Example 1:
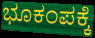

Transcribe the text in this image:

ಭೂಕಂಪಕ್ಕೆ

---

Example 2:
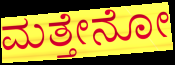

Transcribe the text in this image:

ಮತ್ತೇನೋ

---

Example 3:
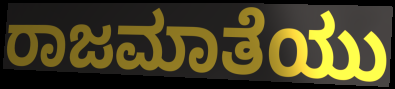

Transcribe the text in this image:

ರಾಜಮಾತೆಯು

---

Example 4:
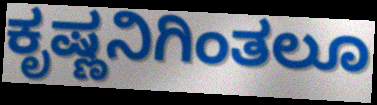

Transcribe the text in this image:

ಕೃಷ್ಣನಿಗಿಂತಲೂ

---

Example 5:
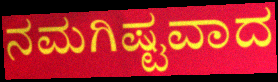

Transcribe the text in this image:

ನಮಗಿಷ್ಟವಾದ